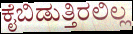
ಕೈಬಿಡುತ್ತಿರಲಿಲ್ಲ